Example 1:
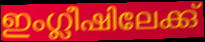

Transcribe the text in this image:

ഇംഗ്ലീഷിലേക്കു്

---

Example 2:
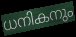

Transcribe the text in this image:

ധനികനും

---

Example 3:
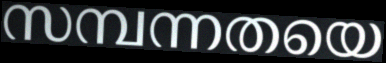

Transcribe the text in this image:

സമ്പന്നതയെ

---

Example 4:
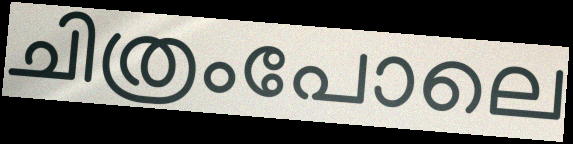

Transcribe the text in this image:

ചിത്രംപോലെ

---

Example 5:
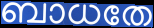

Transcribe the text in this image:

ബാധതേ